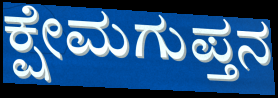
ಕ್ಷೇಮಗುಪ್ತನ